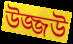
উজ্জউ